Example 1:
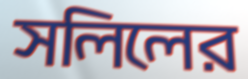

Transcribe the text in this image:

সলিলের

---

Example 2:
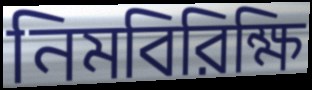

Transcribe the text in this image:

নিমবিরিক্ষি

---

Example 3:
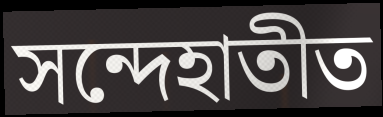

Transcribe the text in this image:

সন্দেহাতীত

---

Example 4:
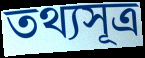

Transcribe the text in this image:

তথ্যসূত্র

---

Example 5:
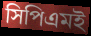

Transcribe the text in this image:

সিপিএমই